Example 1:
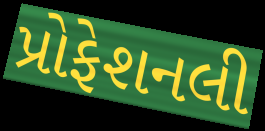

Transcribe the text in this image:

પ્રોફેશનલી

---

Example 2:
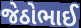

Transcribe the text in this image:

જેઠોભાઈ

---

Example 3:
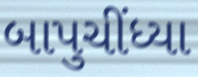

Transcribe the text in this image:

બાપુચીંધ્યા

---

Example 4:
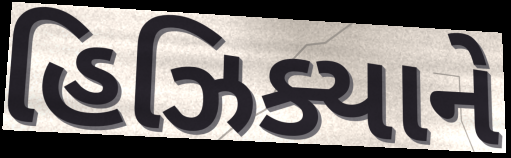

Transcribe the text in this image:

હિઝિક્યાને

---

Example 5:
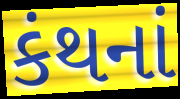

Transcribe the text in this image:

કંથનાં